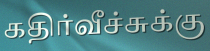
கதிர்வீச்சுக்கு